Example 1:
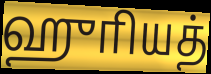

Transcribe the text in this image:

ஹுரியத்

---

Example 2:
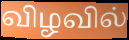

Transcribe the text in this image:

விழவில்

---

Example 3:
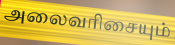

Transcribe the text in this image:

அலைவரிசையும்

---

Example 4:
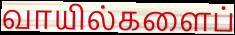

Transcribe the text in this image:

வாயில்களைப்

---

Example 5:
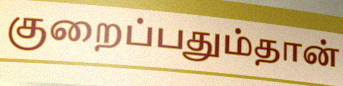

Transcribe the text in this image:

குறைப்பதும்தான்